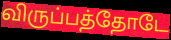
விருப்பத்தோடே